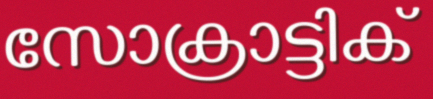
സോക്രാട്ടിക്